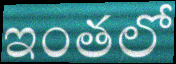
ఇంతలో